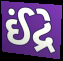
ઈંદ્રે